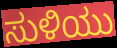
ಸುಳಿಯು